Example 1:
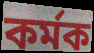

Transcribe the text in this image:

কৰ্মক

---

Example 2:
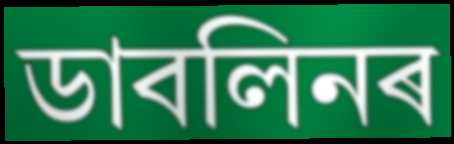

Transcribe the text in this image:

ডাবলিনৰ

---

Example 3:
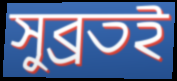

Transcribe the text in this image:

সুব্ৰতই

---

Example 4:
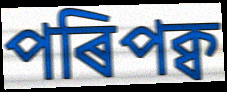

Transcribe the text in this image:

পৰিপক্ব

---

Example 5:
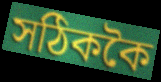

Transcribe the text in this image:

সঠিককৈ